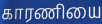
காரணியை